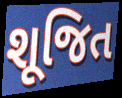
શૂજિત